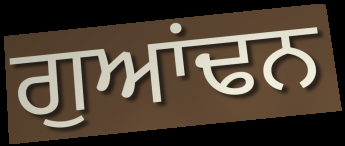
ਗੁਆਂਢਨ